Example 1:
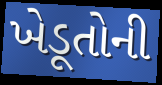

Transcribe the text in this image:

ખેડૂતોની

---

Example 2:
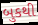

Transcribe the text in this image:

બુકથી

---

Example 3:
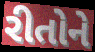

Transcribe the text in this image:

રીતોને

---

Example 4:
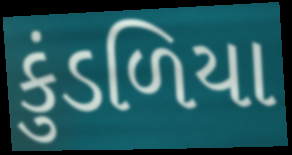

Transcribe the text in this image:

કુંડળિયા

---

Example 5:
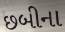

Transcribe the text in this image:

છબીના